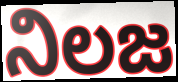
నిలజ